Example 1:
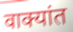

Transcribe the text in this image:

वाक्यांत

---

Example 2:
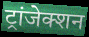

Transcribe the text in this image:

ट्रांजेक्शन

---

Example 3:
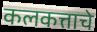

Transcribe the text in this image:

कलकत्ताचे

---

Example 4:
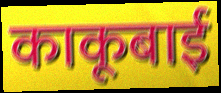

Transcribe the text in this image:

काकूबाई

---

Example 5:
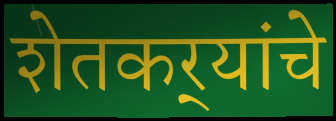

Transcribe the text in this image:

शेतकर्यांचे